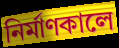
নির্মাণকালে